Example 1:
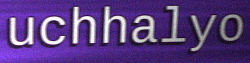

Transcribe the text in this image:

uchhalyo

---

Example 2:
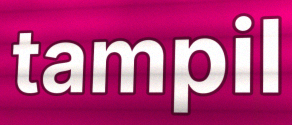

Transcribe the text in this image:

tampil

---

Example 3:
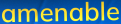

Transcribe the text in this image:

amenable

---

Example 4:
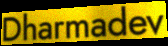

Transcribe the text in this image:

Dharmadev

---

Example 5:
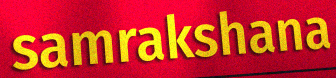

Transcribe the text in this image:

samrakshana